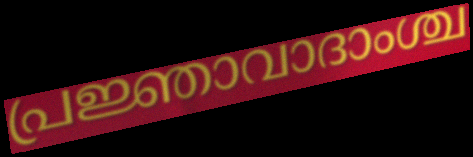
പ്രജ്ഞാവാദാംശ്ച